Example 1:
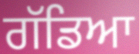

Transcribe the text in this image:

ਗੱਡਿਆ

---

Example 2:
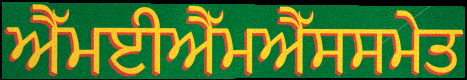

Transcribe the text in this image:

ਐੱਮਈਐੱਮਐੱਸਸਮੇਤ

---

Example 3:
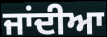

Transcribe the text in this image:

ਜਾਂਦੀਆ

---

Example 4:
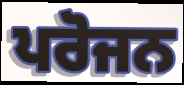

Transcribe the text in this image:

ਪਰੋਜਨ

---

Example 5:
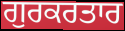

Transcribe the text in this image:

ਗੁਰਕਰਤਾਰ